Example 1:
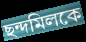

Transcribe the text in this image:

ছন্দমিলকে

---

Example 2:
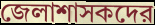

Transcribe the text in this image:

জেলাশাসকদের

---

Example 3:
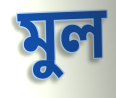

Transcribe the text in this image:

মুল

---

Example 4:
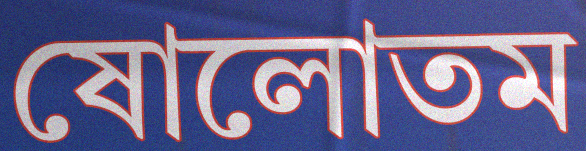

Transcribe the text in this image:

ষোলোতম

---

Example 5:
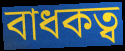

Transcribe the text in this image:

বাধকত্ব